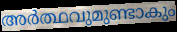
അർത്ഥവുമുണ്ടാകും